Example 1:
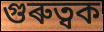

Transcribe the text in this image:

গুৰুত্বক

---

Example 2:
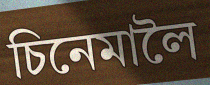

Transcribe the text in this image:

চিনেমালৈ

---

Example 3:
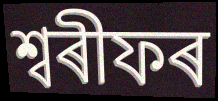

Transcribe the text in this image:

শ্বৰীফৰ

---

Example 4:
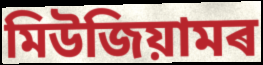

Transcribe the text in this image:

মিউজিয়ামৰ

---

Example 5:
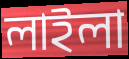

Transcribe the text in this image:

লাইলা